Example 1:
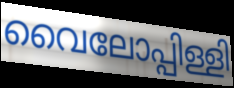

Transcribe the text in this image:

വൈലോപ്പിള്ളി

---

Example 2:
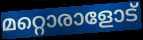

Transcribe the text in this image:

മറ്റൊരാളോട്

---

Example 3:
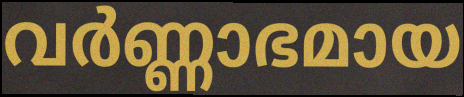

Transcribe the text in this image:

വർണ്ണാഭമായ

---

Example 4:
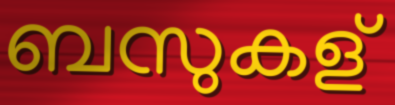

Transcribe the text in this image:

ബസുകള്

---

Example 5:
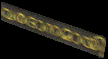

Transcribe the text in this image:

വരദാനമായി